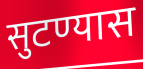
सुटण्यास